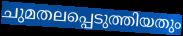
ചുമതലപ്പെടുത്തിയതും